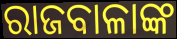
ରାଜବାଳାଙ୍କ